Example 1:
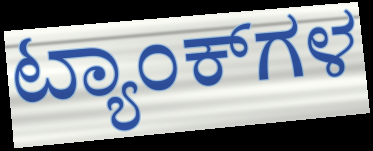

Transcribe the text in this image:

ಟ್ಯಾಂಕ್‌ಗಳ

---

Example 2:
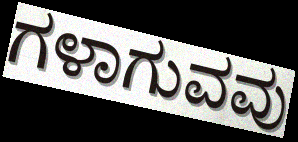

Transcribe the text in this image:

ಗಳಾಗುವವು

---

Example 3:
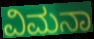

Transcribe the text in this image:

ವಿಮನಾ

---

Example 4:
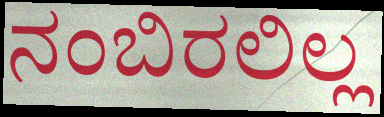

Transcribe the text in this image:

ನಂಬಿರಲಿಲ್ಲ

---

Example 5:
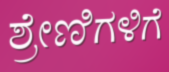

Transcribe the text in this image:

ಶ್ರೇಣಿಗಳಿಗೆ